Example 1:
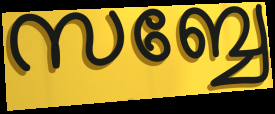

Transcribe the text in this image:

സബ്ബേ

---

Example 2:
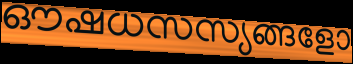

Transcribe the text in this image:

ഔഷധസസ്യങ്ങളോ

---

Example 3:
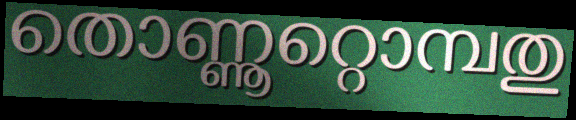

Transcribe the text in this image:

തൊണ്ണൂറ്റൊമ്പതു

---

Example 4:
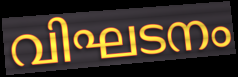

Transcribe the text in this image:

വിഘടനം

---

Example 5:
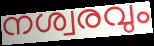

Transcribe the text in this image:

നശ്വരവും